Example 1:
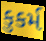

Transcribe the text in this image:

કુકર્મ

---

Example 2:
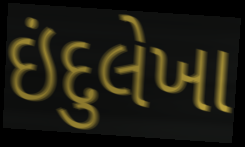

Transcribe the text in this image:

ઇંદુલેખા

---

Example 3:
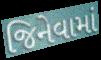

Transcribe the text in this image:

જિનેવામાં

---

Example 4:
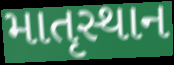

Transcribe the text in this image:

માતૃસ્થાન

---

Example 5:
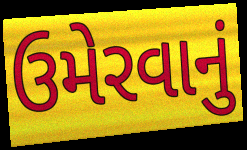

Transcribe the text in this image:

ઉમેરવાનું